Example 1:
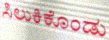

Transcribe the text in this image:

ಸಿಲುಕಿಕೊಂಡು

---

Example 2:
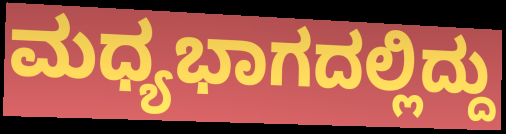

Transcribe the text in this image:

ಮಧ್ಯಭಾಗದಲ್ಲಿದ್ದು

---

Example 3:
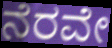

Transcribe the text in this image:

ನೆರವೇ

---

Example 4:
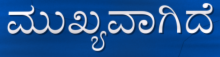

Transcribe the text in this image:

ಮುಖ್ಯವಾಗಿದೆ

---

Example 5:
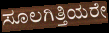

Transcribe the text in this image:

ಸೂಲಗಿತ್ತಿಯರೇ